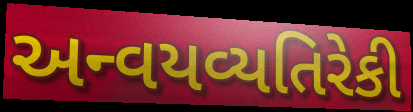
અન્વયવ્યતિરેકી